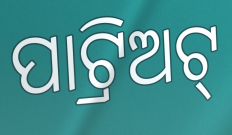
ପାଟ୍ରିଅଟ୍